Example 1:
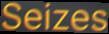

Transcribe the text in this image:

Seizes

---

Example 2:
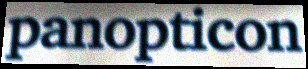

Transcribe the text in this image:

panopticon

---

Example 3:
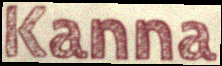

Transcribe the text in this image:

Kanna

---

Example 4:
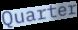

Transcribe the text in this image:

Quarter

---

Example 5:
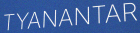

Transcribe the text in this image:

TYANANTAR